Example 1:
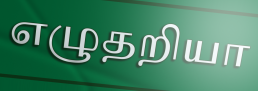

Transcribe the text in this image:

எழுதறியா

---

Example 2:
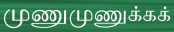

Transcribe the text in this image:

முணுமுணுக்கக்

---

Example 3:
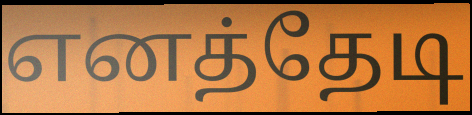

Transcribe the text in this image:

எனத்தேடி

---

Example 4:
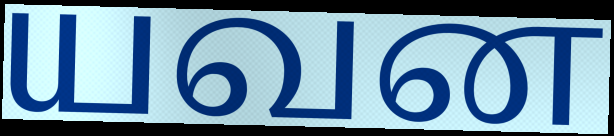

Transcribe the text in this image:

யவன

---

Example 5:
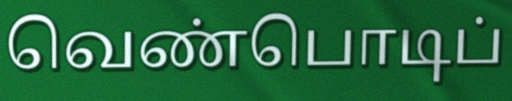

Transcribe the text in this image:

வெண்பொடிப்